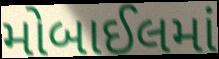
મોબાઈલમાં